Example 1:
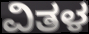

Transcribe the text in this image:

ವಿತಳ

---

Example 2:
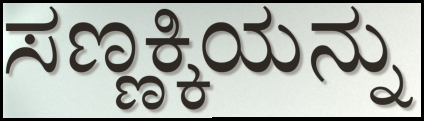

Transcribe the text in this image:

ಸಣ್ಣಕ್ಕಿಯನ್ನು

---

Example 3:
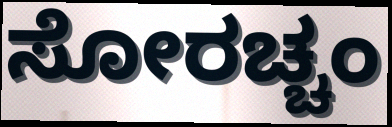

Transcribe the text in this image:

ಸೋರಚ್ಚಂ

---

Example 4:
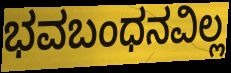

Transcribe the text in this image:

ಭವಬಂಧನವಿಲ್ಲ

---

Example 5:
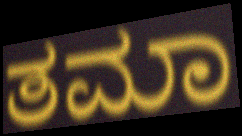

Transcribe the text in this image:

ತಮಾ